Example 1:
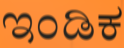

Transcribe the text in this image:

ಇಂಡಿಕ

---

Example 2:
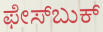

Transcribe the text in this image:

ಫೇಸ್‌ಬುಕ್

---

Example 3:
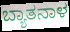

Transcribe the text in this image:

ಬ್ಯಾತನಾಳ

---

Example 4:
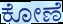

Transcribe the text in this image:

ಕೋಣೆ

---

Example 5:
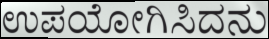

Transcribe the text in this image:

ಉಪಯೋಗಿಸಿದನು